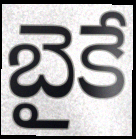
బైకే